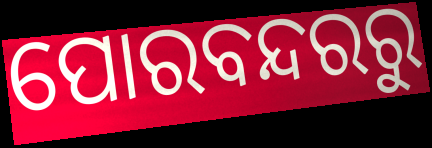
ପୋରବନ୍ଦରରୁ